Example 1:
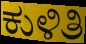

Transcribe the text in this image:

ಕುಳಿತಿ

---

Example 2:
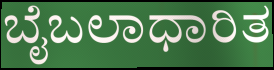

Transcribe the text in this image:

ಬೈಬಲಾಧಾರಿತ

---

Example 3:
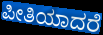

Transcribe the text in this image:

ಪೀತಿಯಾದರೆ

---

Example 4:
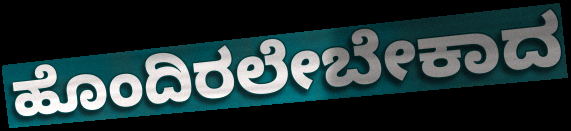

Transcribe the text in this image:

ಹೊಂದಿರಲೇಬೇಕಾದ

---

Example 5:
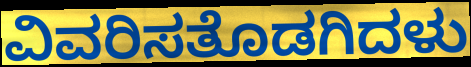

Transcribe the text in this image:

ವಿವರಿಸತೊಡಗಿದಳು